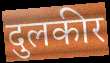
दुलकीर